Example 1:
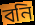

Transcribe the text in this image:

বনি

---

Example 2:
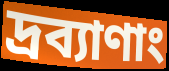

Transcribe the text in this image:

দ্রব্যাণাং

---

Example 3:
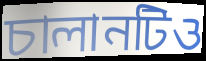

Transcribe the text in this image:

চালানটিও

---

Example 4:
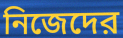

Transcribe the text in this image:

নিজেদের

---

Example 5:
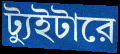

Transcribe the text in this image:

ট্যুইটারে